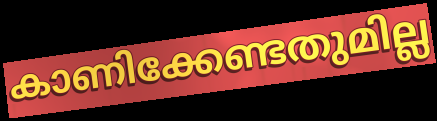
കാണിക്കേണ്ടതുമില്ല